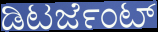
ಡಿಟರ್ಜೆಂಟ್